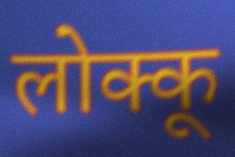
लोक्कू